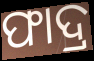
ଫାଦ୍ର